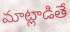
మాట్లాడితే